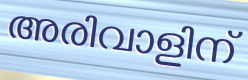
അരിവാളിന്